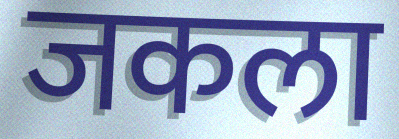
जकला